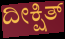
ದೀಕ್ಷಿತ್